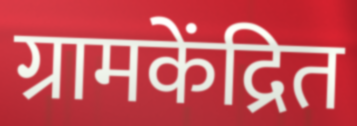
ग्रामकेंद्रित